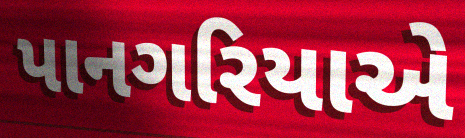
પાનગરિયાએ